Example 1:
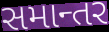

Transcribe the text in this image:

સમાન્તર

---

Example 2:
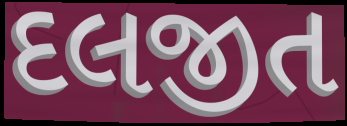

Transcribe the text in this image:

દલજીત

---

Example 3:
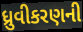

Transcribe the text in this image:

ધ્રુવીકરણની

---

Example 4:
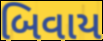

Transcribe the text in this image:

બિવાય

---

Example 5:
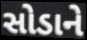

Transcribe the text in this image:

સોડાને